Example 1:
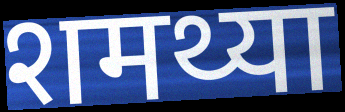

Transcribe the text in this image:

शमथ्या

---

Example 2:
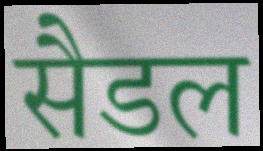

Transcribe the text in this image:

सैडल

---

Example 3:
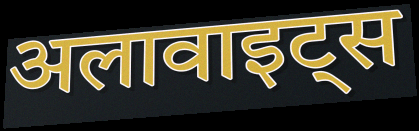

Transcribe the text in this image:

अलावाइट्स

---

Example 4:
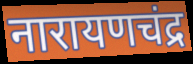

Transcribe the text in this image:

नारायणचंद्र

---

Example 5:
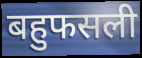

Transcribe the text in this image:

बहुफसली